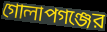
গোলাপগঞ্জের